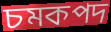
চমকপদ